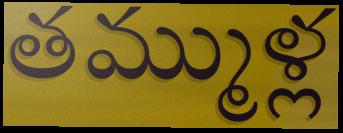
తమ్ముళ్ల